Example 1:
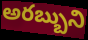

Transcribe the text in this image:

అరబ్బుని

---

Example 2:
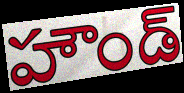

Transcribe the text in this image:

హౌండ్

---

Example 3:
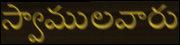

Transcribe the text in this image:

స్వాములవారు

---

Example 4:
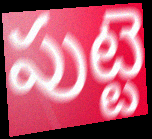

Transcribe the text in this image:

పుట్టె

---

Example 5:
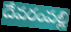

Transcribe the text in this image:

దేవరంపల్లి